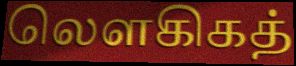
லௌகிகத்